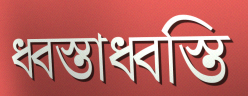
ধ্বস্তাধ্বস্তি